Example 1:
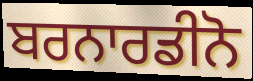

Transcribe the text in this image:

ਬਰਨਾਰਡੀਨੋ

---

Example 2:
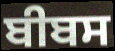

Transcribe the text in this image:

ਬੀਬਸ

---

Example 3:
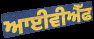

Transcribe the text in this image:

ਆਈਵੀਐੱਫ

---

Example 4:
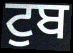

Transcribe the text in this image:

ਟੁਬ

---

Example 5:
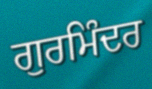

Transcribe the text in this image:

ਗੁਰਮਿੰਦਰ